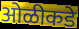
ओळीकडे